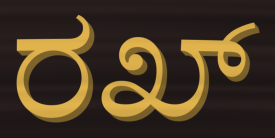
ರಖ್